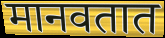
मानवतात